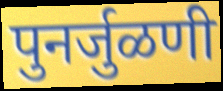
पुनर्जुळणी